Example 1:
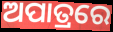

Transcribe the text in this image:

ଅପାତ୍ରରେ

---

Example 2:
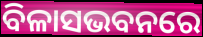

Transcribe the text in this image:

ବିଳାସଭବନରେ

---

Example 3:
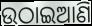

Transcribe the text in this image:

ଉଠାଇଆଣି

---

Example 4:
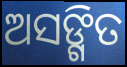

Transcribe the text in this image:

ଅସଙ୍ଗିତ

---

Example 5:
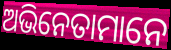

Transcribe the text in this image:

ଅଭିନେତାମାନେ